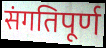
संगतिपूर्ण